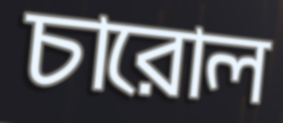
চারোল